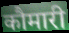
कौमारी